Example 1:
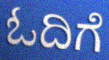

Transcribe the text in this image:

ಓದಿಗೆ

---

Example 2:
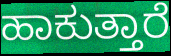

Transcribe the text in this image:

ಹಾಕುತ್ತಾರೆ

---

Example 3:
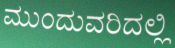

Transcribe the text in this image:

ಮುಂದುವರಿದಲ್ಲಿ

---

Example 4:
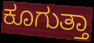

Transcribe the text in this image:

ಕೂಗುತ್ತಾ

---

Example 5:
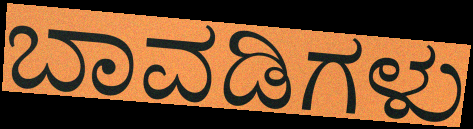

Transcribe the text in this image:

ಬಾವಡಿಗಳು